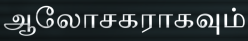
ஆலோசகராகவும்